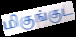
மிகுங்குட